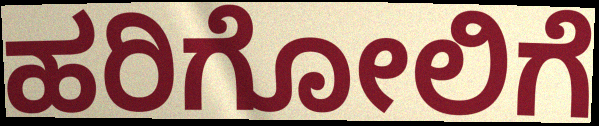
ಹರಿಗೋಲಿಗೆ